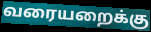
வரையறைக்கு